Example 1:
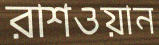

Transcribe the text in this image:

রাশওয়ান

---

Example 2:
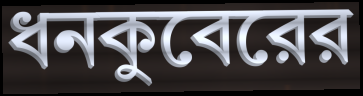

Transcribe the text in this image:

ধনকুবেরের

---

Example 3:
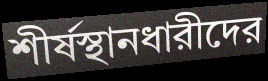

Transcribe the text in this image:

শীর্ষস্থানধারীদের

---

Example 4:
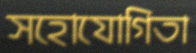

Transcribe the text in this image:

সহোযোগিতা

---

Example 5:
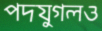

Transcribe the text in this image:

পদযুগলও